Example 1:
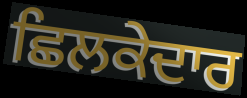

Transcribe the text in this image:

ਛਿਲਕੇਦਾਰ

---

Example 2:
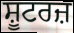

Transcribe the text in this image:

ਸ਼ੂਟਰਜ਼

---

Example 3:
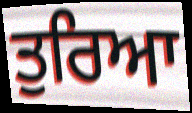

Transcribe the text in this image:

ਤੁਰਿਆ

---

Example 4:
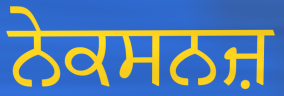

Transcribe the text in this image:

ਨੇਕਸਨਜ਼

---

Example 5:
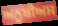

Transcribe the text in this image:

ਅਨੂਬੀਅਸ